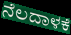
ನೆಲದಾಳಕೆ